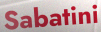
Sabatini